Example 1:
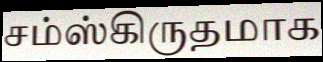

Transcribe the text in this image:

சம்ஸ்கிருதமாக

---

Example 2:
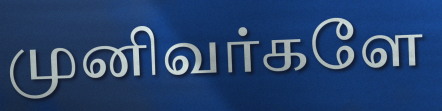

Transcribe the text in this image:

முனிவர்களே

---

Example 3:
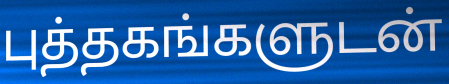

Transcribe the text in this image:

புத்தகங்களுடன்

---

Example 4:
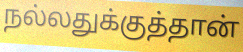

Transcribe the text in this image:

நல்லதுக்குத்தான்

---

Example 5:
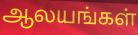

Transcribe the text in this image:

ஆலயங்கள்